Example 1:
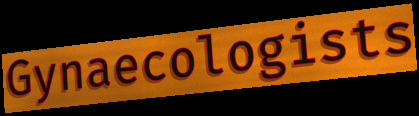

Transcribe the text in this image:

Gynaecologists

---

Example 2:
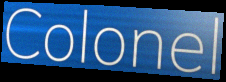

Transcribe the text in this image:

Colonel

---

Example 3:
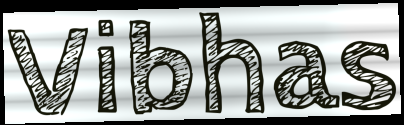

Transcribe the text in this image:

Vibhas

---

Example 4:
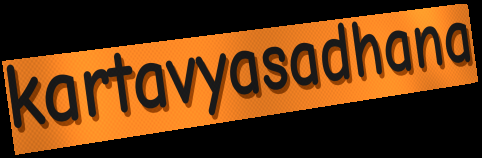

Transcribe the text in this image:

kartavyasadhana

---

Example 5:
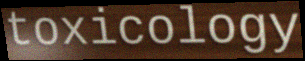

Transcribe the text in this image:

toxicology